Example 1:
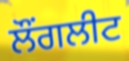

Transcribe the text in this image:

ਲੌਂਗਲੀਟ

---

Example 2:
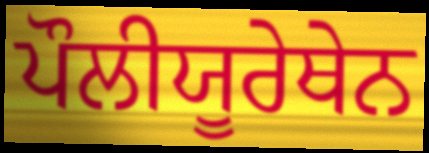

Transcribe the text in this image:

ਪੌਲੀਯੂਰੇਥੇਨ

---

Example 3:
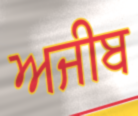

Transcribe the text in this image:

ਅਜੀਬ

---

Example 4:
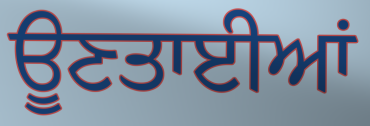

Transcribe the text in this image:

ਊਣਤਾਈਆਂ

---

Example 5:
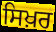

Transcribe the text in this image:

ਸਿਖ਼ਰ